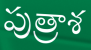
పుత్రాశ